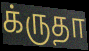
க்ருதா